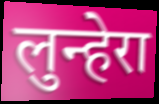
लुन्हेरा